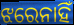
ଝରେନାହିଁ